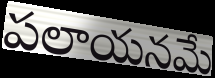
పలాయనమే